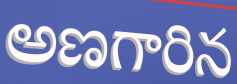
అణగారిన